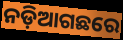
ନଡ଼ିଆଗଛରେ